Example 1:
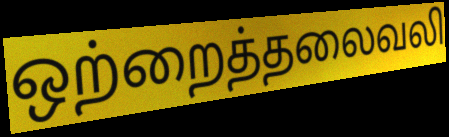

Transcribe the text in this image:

ஒற்றைத்தலைவலி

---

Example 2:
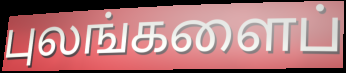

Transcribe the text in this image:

புலங்களைப்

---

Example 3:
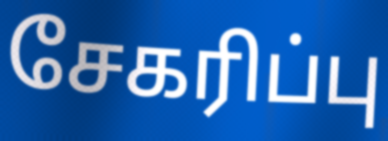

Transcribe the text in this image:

சேகரிப்பு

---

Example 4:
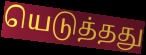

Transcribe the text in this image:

யெடுத்தது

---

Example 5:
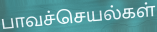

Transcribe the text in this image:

பாவச்செயல்கள்